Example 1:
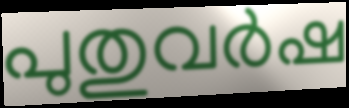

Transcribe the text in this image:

പുതുവർഷ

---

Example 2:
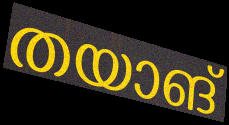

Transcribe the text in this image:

തയാങ്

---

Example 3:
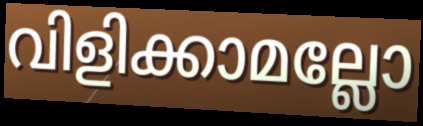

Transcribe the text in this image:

വിളിക്കാമല്ലോ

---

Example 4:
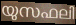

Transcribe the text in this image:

യുസഫലി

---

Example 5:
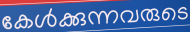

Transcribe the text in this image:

കേൾക്കുന്നവരുടെ